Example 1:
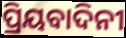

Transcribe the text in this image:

ପ୍ରିୟବାଦିନୀ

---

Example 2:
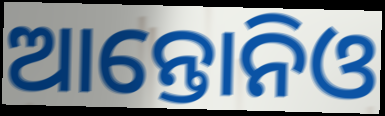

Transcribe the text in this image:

ଆନ୍ତୋନିଓ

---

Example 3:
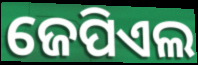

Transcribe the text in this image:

ଜେପିଏଲ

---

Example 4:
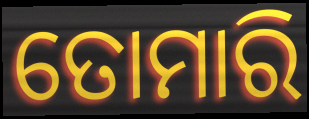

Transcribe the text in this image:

ତୋମାରି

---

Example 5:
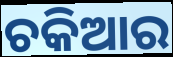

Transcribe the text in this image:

ଚକିଆର